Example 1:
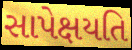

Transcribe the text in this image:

સાપેક્ષયતિ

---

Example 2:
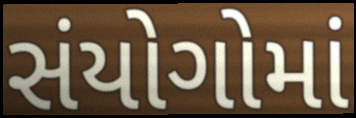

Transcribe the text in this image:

સંયોગોમાં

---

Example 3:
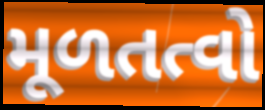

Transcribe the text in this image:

મૂળતત્વો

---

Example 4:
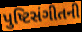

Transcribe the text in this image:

પુષ્ટિસંગીતની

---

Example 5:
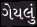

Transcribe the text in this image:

ગેયલું